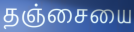
தஞ்சையை